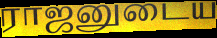
ராஜனுடைய